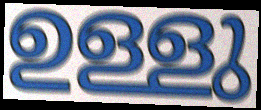
ഉള്ളു